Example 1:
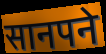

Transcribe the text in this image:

सानपने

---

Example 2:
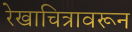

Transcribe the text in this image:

रेखाचित्रावरून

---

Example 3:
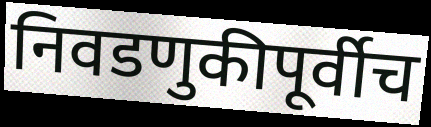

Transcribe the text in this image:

निवडणुकीपूर्वीच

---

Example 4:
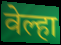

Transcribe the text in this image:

वेल्हा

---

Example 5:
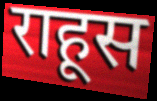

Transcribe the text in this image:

राहूस